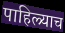
पाहिल्याच